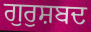
ਗੁਰੁਸ਼ਬਦ